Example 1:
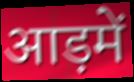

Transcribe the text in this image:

आड़में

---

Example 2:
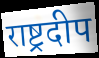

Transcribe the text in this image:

राष्ट्रदीप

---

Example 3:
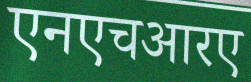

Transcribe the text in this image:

एनएचआरए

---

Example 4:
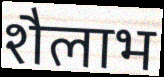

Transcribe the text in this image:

शैलाभ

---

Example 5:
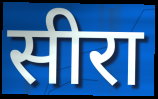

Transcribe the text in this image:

सीरा